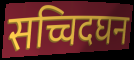
सच्चिदघन